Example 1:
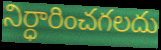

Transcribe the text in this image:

నిర్ధారించగలదు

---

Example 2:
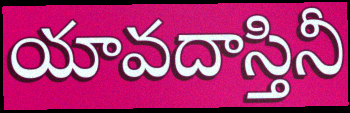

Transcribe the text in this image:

యావదాస్తినీ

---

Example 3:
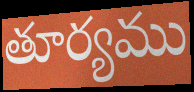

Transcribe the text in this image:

తూర్యము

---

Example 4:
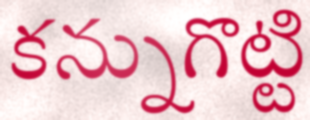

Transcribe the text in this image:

కన్నుగొట్టి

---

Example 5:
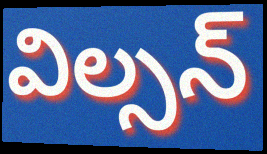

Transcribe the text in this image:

విల్సన్